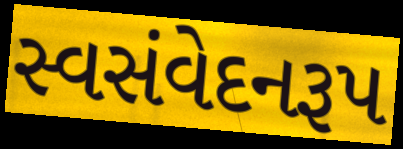
સ્વસંવેદનરૂપ